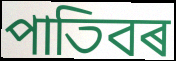
পাতিবৰ